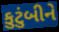
કુટુંબીને